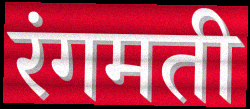
रंगमती